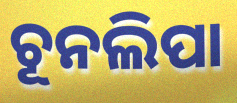
ଚୂନଲିପା